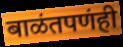
बाळंतपणंही